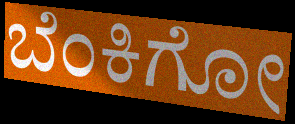
ಬೆಂಕಿಗೋ